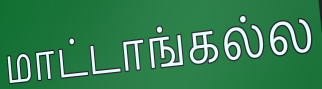
மாட்டாங்கல்ல